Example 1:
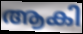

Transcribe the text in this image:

ആകി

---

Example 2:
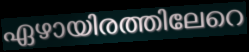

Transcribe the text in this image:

ഏഴായിരത്തിലേറെ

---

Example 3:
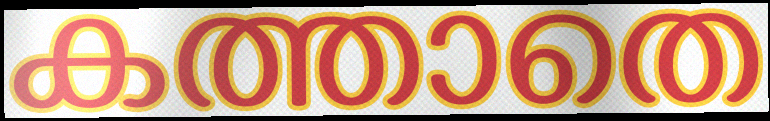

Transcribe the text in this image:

കത്താതെ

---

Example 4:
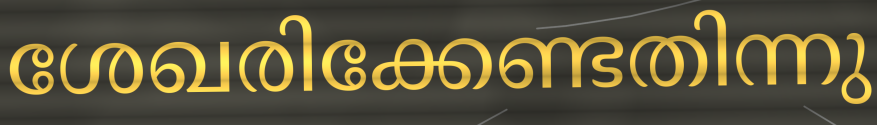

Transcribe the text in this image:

ശേഖരിക്കേണ്ടതിന്നു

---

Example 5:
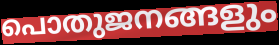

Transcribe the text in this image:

പൊതുജനങ്ങളും